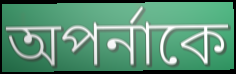
অপর্নাকে